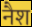
नैश